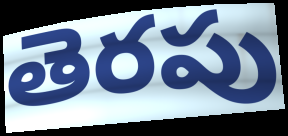
తెరపు